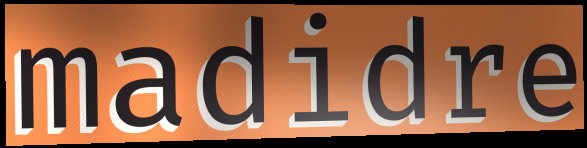
madidre